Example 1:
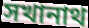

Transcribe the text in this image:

সখানাথ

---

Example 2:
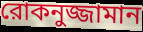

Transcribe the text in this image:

রোকনুজ্জামান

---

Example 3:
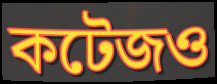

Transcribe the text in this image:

কটেজও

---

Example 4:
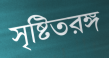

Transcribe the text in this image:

সৃষ্টিতরঙ্গ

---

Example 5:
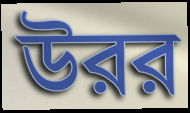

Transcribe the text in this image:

উরর